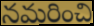
నమరించి